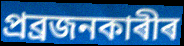
প্ৰব্ৰজনকাৰীৰ